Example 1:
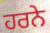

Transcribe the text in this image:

ਹਰਨੇ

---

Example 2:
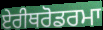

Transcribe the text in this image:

ਏਰੀਥਰੋਡਰਮਾ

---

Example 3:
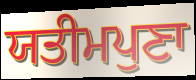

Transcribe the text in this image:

ਯਤੀਮਪੁਣਾ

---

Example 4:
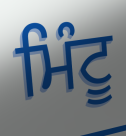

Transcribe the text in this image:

ਮਿੰਟੂ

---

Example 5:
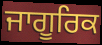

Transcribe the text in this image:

ਜਾਗੂਰਿਕ